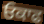
ਓਕਾਫ